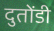
दुतोंडी